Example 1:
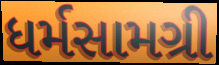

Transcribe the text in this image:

ધર્મસામગ્રી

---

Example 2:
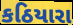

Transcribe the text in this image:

કઠિયારા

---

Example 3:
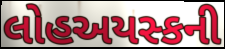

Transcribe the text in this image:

લોહઅયસ્કની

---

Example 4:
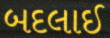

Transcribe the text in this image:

બદલાઈ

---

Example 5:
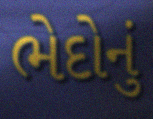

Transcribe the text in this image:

ભેદોનું